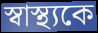
স্বাস্থ্যকে